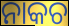
ନାକଚ